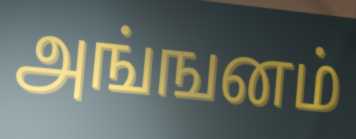
அங்ஙனம்